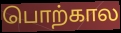
பொற்கால